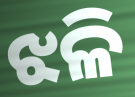
ଝଳି